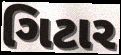
ગિટાર